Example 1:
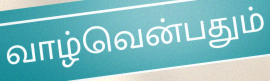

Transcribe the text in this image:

வாழ்வென்பதும்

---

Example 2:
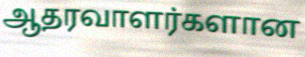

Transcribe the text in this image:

ஆதரவாளர்களான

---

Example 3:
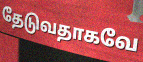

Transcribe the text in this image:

தேடுவதாகவே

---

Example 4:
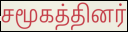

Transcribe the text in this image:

சமூகத்தினர்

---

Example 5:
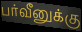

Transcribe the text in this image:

பர்வீனுக்கு